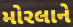
મોરલાને